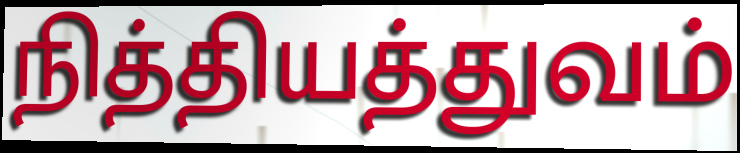
நித்தியத்துவம்